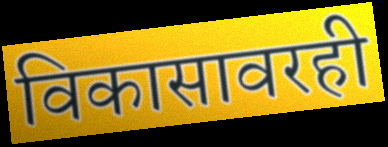
विकासावरही